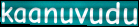
kaanuvudu